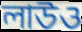
লাউও